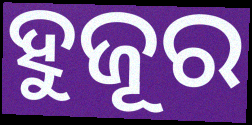
ହୁଜୂର